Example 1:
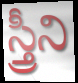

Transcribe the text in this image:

స్త్రీని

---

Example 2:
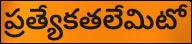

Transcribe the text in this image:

ప్రత్యేకతలేమిటో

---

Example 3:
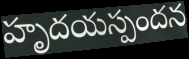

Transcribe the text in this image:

హృదయస్పందన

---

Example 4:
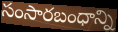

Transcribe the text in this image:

సంసారబంధాన్ని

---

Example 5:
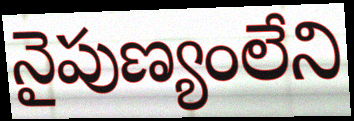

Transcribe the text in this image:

నైపుణ్యంలేని